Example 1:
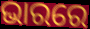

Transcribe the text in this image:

ଭାରରେ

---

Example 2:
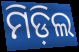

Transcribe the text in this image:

ମିଡ଼ିଲ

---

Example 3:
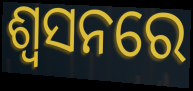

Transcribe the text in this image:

ଶ୍ଵସନରେ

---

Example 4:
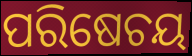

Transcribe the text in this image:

ପରିଷେଚୟ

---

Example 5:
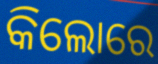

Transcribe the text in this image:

କିଲୋରେ